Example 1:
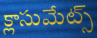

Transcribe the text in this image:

క్లాసుమేట్స్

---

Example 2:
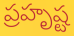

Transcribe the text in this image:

ప్రహృష్ట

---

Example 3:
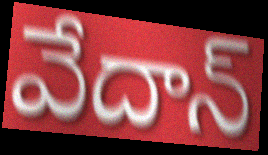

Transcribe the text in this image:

వేదాన్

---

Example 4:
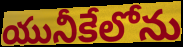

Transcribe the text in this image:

యునీకేలోను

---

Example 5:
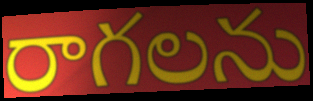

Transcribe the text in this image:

రాగలను